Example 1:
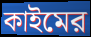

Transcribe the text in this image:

কাইমের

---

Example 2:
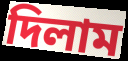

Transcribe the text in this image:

দিলাম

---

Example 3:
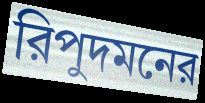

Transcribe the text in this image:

রিপুদমনের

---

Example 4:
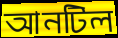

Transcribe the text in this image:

আনটিল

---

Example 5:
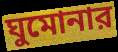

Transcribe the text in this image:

ঘুমোনার